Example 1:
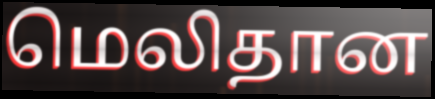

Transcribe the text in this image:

மெலிதான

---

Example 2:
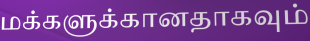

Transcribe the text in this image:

மக்களுக்கானதாகவும்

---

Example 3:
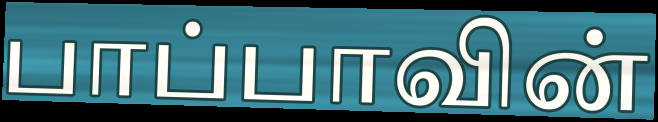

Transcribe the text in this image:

பாப்பாவின்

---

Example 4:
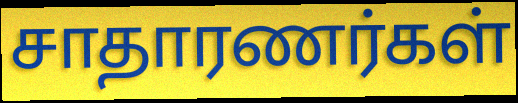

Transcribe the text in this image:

சாதாரணர்கள்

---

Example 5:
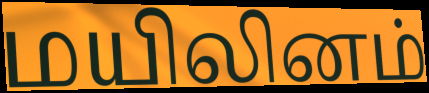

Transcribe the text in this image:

மயிலினம்